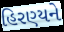
હિરણ્યને